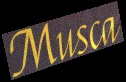
Musca